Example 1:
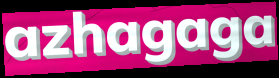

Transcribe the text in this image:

azhagaga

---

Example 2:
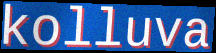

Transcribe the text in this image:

kolluva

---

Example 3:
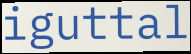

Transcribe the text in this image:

iguttal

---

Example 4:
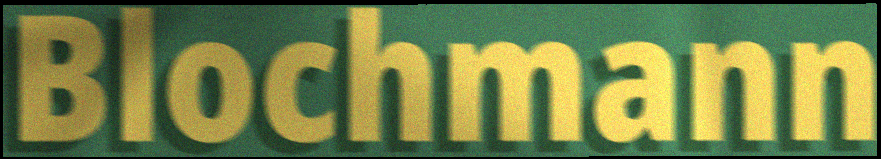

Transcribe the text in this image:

Blochmann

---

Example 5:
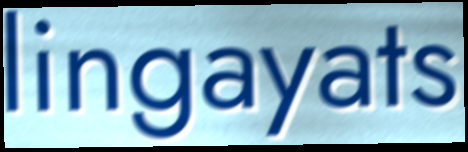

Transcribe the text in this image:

lingayats